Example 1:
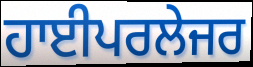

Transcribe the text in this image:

ਹਾਈਪਰਲੇਜਰ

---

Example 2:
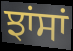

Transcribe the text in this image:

ਝਾਂਸਾਂ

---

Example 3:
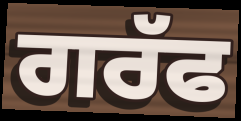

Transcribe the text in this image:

ਗਰੱਫ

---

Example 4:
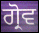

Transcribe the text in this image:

ਗ੍ਰੋਵ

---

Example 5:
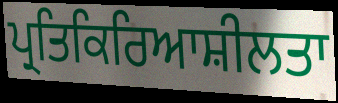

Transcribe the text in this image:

ਪ੍ਰਤਿਕਿਰਿਆਸ਼ੀਲਤਾ